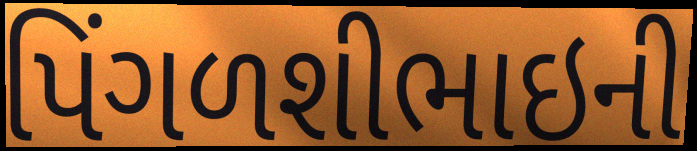
પિંગળશીભાઇની